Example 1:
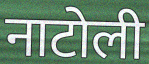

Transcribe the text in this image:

नाटोली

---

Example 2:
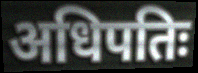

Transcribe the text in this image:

अधिपतिः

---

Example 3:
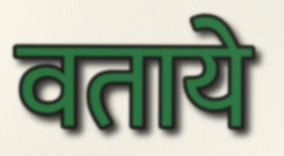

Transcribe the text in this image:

वताये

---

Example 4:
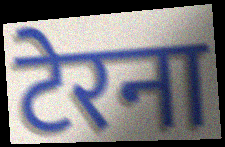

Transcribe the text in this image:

टेरना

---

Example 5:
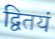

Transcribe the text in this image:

द्वितयं